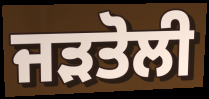
ਜੜਤੋਲੀ